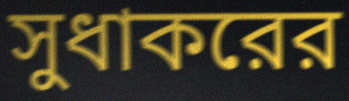
সুধাকরের